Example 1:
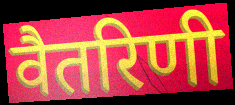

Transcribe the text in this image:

वैतरिणी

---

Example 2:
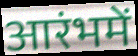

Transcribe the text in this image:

आरंभमें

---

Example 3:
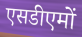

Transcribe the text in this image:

एसडीएमों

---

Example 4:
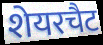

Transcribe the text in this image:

शेयरचैट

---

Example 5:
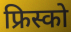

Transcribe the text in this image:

फ्रिस्को